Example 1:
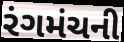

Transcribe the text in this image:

રંગમંચની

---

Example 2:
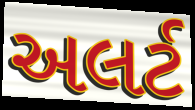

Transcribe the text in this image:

અલર્ટ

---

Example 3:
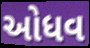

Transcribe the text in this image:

ઓધવ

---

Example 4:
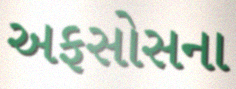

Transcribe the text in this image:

અફસોસના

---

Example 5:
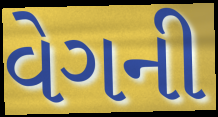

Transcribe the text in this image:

વેગની